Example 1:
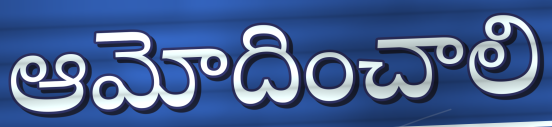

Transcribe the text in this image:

ఆమోదించాలి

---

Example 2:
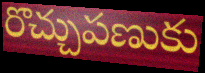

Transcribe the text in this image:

రొచ్చుపణుకు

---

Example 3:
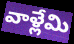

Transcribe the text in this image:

వాళ్లేమి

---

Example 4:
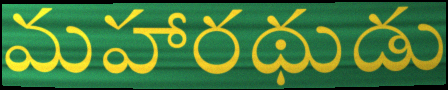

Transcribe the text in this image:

మహారథుడు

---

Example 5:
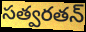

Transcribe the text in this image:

సత్వరతన్